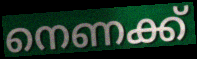
നെണക്ക്